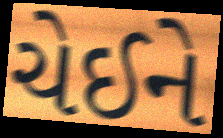
ચેઈને